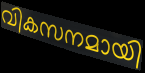
വികസനമായി